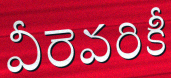
వీరెవరికీ